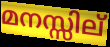
മനസ്സില്